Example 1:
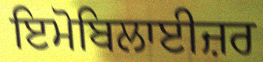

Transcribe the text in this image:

ਇਮੋਬਿਲਾਈਜ਼ਰ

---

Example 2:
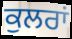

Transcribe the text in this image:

ਕੁਲਰਾਂ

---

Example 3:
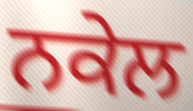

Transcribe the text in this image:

ਨਕੇਲ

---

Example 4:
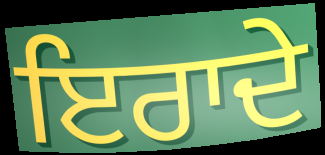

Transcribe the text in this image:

ਇਰਾਦੇ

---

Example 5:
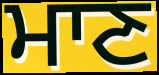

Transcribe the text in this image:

ਮਾਣ